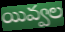
యివ్వల